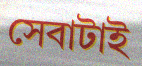
সেবাটাই